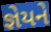
જ્ઞેયને